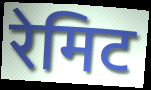
रेमिट